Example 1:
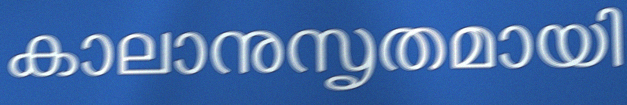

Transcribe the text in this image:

കാലാനുസൃതമായി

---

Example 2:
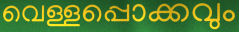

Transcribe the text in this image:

വെള്ളപ്പൊക്കവും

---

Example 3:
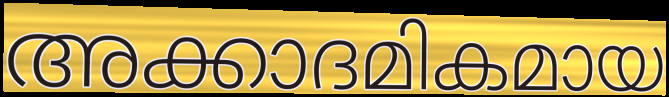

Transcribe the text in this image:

അക്കാദമികമായ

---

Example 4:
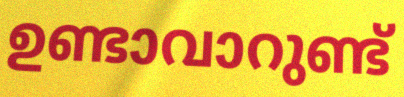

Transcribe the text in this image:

ഉണ്ടാവാറുണ്ട്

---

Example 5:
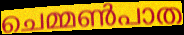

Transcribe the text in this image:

ചെമ്മൺപാത